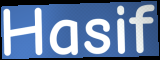
Hasif